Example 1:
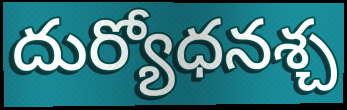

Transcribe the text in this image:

దుర్యోధనశ్చ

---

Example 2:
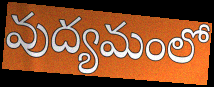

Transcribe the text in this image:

వుద్యమంలో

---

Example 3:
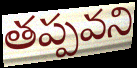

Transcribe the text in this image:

తప్పవని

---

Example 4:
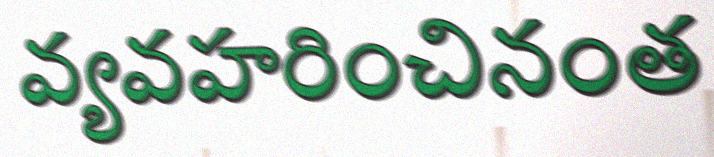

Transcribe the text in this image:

వ్యవహరించినంత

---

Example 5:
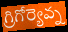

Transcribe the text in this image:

గ్రిగోర్యెవ్న